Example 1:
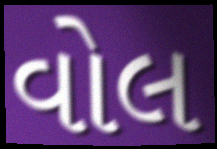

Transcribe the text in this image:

વોલ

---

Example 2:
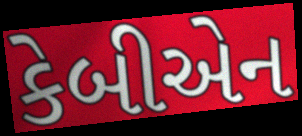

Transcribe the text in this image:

કેબીએન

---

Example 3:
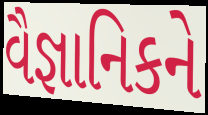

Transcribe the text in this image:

વૈજ્ઞાનિકને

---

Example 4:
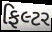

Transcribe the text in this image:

ફિલ્ટર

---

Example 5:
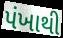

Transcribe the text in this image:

પંખાથી